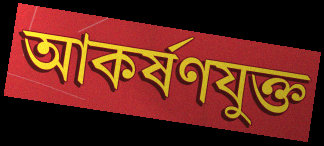
আকর্ষণযুক্ত